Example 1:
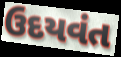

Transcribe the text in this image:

ઉદયવંત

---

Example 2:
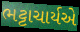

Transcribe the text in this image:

ભટ્ટાચાર્યએ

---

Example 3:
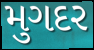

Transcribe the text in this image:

મુગદર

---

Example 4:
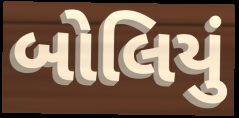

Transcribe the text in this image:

બોલિયું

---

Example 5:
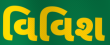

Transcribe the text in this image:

વિવિશ